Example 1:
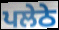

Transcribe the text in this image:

ਪਲੇਠੇ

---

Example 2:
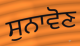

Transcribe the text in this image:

ਸੁਨਾਵੋਣ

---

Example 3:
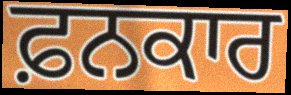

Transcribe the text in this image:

ਫ਼ਨਕਾਰ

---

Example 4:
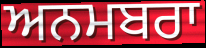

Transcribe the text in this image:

ਅਨਮਬਰਾ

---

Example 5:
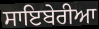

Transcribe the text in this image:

ਸਾਇਬੇਰੀਆ